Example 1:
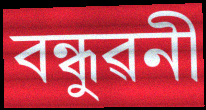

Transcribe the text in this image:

বন্ধুৱনী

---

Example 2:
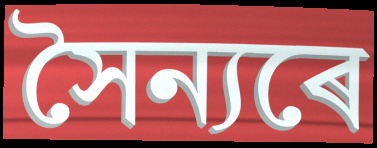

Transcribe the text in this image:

সৈন্যৰে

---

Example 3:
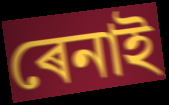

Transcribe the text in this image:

ৰেনাই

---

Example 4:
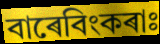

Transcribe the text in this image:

বাৰেবিংকৰাঃ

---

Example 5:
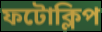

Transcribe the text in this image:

ফটোক্লিপ